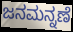
ಜನಮನ್ನಣೆ